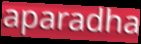
aparadha